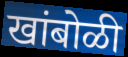
खांबोळी